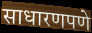
साधारणपणे